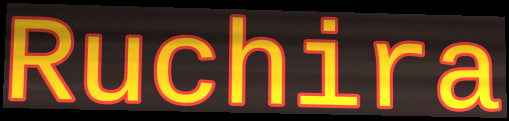
Ruchira